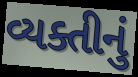
વ્યક્તીનું